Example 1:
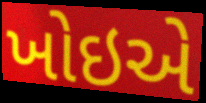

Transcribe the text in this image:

ખોઇએ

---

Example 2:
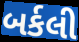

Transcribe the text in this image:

બર્કલી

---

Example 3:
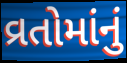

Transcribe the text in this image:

વ્રતોમાંનું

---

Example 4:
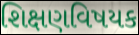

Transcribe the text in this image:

શિક્ષણવિષયક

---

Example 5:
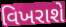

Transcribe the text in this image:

વિખરાશે